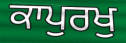
ਕਾਪੁਰਖੁ